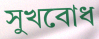
সুখবোধ